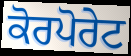
ਕੋਰਪੋਰੇਟ